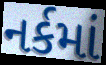
નર્કમાં